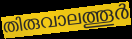
തിരുവാലത്തൂർ